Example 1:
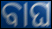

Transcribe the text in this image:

ବାଘ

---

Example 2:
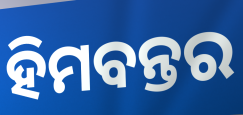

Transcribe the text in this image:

ହିମବନ୍ତର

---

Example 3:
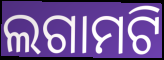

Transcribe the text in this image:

ଲଗାମଟି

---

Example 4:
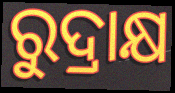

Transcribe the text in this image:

ରୁଦ୍ରାକ୍ଷ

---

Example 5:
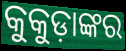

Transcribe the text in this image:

କୁକୁଡ଼ାଙ୍କର